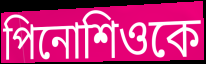
পিনোশিওকে